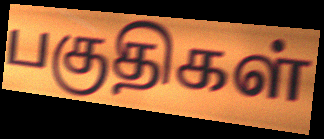
பகுதிகள்